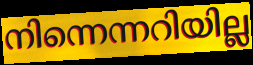
നിന്നെന്നറിയില്ല